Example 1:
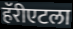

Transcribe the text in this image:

हॅरीएटला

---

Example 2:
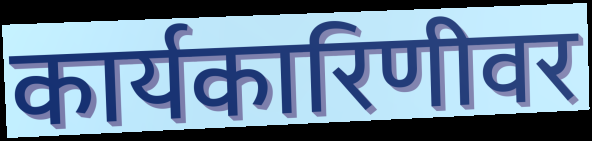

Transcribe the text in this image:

कार्यकारिणीवर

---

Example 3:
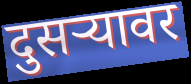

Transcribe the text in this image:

दुसऱ्यावर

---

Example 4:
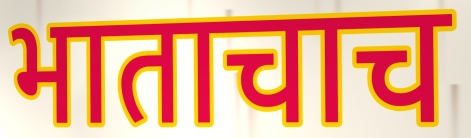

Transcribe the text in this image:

भाताचाच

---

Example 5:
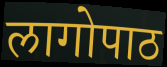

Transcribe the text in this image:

लागोपाठ